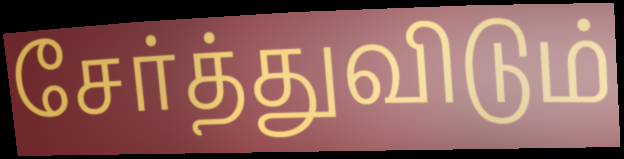
சேர்த்துவிடும்